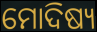
ମୋଦିଷ୍ୟ